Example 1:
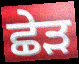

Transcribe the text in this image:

ਛੇੜ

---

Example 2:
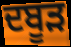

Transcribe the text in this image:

ਦਬੂੜ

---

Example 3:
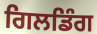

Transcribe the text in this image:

ਗਿਲਡਿੰਗ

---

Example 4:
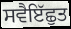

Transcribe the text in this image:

ਸਵੈਇੱਛੁਤ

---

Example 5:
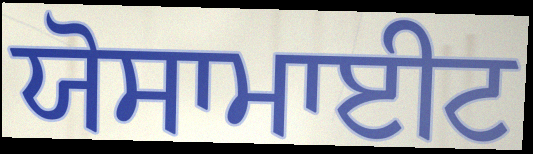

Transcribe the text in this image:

ਯੋਸਾਮਾਈਟ